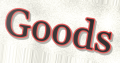
Goods